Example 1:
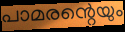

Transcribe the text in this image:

പാമരന്റെയും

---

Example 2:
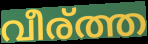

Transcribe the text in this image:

വീര്ത്ത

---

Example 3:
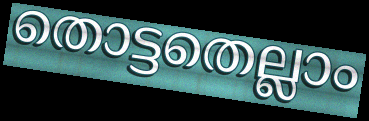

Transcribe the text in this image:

തൊട്ടതെല്ലാം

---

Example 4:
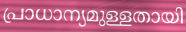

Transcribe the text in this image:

പ്രാധാന്യമുള്ളതായി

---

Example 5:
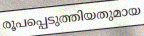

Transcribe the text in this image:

രൂപപ്പെടുത്തിയതുമായ